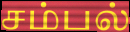
சம்பல்